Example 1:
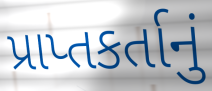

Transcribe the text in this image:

પ્રાપ્તકર્તાનું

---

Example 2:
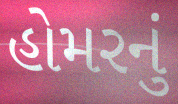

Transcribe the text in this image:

હોમરનું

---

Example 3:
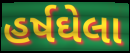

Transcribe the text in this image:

હર્ષઘેલા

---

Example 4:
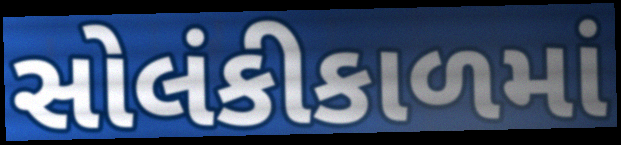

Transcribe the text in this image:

સોલંકીકાળમાં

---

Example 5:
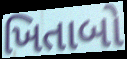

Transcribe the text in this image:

ખિતાબો